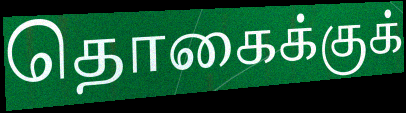
தொகைக்குக்